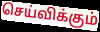
செய்விக்கும்